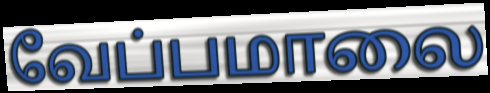
வேப்பமாலை